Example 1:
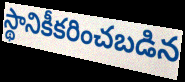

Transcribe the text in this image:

స్థానికీకరించబడిన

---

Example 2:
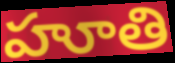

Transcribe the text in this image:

హూతి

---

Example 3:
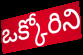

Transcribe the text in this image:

ఒక్కోరిని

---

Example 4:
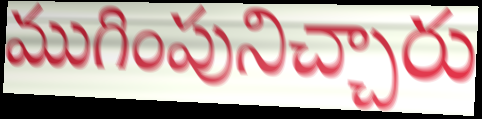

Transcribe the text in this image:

ముగింపునిచ్చారు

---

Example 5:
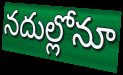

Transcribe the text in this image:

నదుల్లోనూ